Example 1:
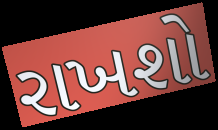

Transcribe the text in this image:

રાખશો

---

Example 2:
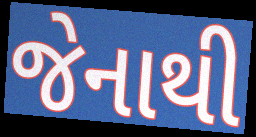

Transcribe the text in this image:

જેનાથી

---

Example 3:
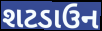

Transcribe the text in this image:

શટડાઉન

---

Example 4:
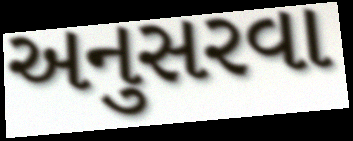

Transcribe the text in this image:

અનુસરવા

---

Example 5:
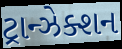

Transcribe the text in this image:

ટ્રાન્ઝેક્શન